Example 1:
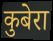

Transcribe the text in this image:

कुबेरा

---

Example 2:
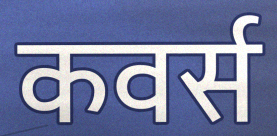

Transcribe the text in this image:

कवर्स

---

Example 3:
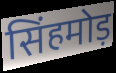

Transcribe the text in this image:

सिंहमोड़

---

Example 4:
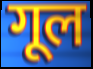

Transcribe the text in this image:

गूल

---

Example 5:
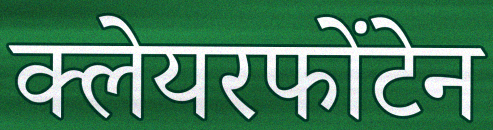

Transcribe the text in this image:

क्लेयरफोंटेन